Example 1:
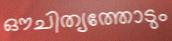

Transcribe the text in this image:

ഔചിത്യത്തോടും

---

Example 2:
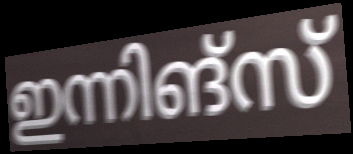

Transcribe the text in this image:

ഇന്നിങ്സ്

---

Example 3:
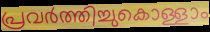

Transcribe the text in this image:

പ്രവർത്തിച്ചുകൊള്ളാം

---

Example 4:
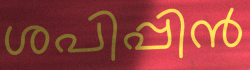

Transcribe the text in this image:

ശപിപ്പിൻ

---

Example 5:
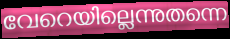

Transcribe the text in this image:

വേറെയില്ലെന്നുതന്നെ